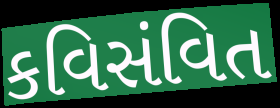
કવિસંવિત